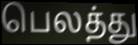
பெலத்து